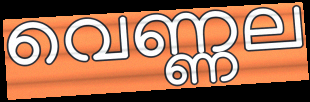
വെണ്ണല